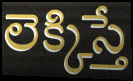
లెక్కిస్తే